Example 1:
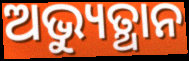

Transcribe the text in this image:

ଅଭ୍ୟୁତ୍ଥାନ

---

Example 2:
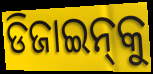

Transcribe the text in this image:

ଡିଜାଇନ୍‌କୁ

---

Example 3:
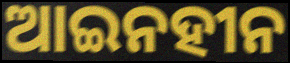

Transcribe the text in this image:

ଆଇନହୀନ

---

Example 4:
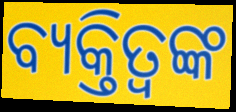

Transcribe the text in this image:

ବ୍ୟକ୍ତିତ୍ବଙ୍କ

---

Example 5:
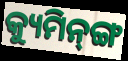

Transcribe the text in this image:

କ୍ୟୁମିନ୍‌ଙ୍ଗ